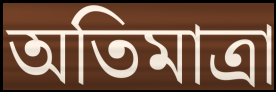
অতিমাত্ৰা